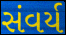
સંવર્ય